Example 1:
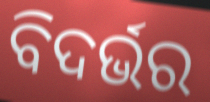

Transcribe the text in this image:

ବିଦର୍ଭର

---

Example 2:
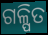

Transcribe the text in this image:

ଗଳ୍ପିତ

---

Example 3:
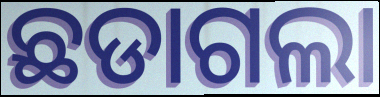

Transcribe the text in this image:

ଛଡାଗଲା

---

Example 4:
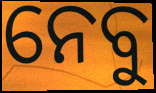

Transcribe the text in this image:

ନେବୁ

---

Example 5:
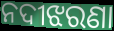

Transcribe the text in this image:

ନଦୀଝରଣା